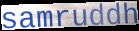
samruddh